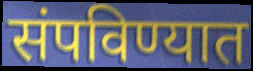
संपविण्यात